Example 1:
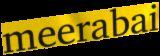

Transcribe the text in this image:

meerabai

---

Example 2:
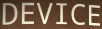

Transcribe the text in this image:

DEVICE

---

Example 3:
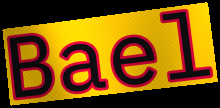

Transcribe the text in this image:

Bael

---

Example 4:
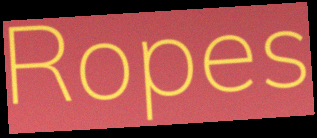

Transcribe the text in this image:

Ropes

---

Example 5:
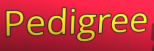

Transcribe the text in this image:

Pedigree